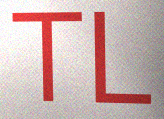
TL